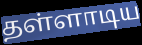
தள்ளாடிய